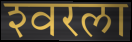
श्वरला